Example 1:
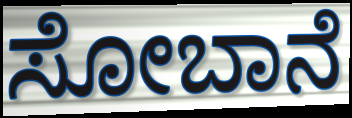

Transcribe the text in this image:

ಸೋಬಾನೆ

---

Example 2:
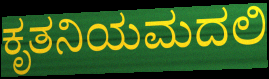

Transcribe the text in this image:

ಕೃತನಿಯಮದಲಿ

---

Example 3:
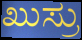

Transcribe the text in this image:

ಖುಸ್ರು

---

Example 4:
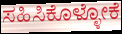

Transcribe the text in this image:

ಸಹಿಸಿಕೊಳ್ಳೋಕೆ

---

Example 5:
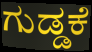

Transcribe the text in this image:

ಗುಡ್ಡಕೆ